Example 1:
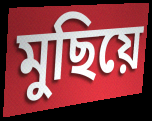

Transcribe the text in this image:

মুছিয়ে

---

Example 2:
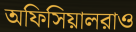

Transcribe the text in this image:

অফিসিয়ালরাও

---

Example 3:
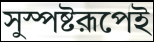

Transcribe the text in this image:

সুস্পষ্টরূপেই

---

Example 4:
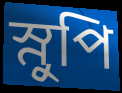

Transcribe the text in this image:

স্নুপি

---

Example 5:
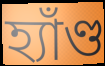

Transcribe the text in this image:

হ্যাঁণ্ড